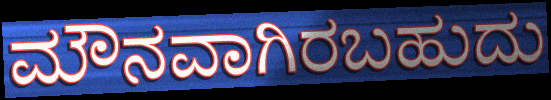
ಮೌನವಾಗಿರಬಹುದು